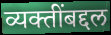
व्यक्तींबद्दल